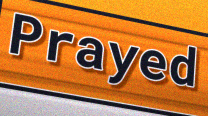
Prayed